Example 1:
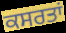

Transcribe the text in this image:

ਕਸਰਤਾਂ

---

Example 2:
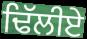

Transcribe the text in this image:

ਢਿੱਲੀਏ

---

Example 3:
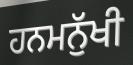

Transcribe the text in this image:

ਹਨਮਨੁੱਖੀ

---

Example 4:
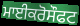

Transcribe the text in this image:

ਮਾਈਕਰੋਸੌਫਟ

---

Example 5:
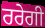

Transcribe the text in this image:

ਰਰੇਗੀ